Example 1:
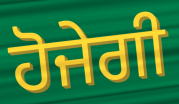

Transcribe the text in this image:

ਹੋਜੇਗੀ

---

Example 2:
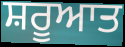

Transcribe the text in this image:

ਸ਼ਰੂਆਤ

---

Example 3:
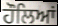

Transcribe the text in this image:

ਹੌਲਿਆਂ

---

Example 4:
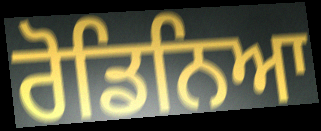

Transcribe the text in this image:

ਰੋਡਿਨਿਆ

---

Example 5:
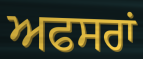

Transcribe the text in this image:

ਅਫਸਰਾਂ